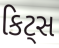
કિટ્સ